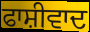
ਫਾਸ਼ੀਵਾਦ